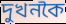
দুখনকৈ